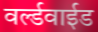
वर्ल्डवाईड